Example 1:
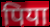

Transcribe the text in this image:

पिया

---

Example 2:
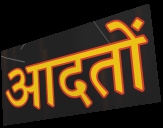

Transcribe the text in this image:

आदतों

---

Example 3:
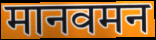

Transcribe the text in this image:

मानवमन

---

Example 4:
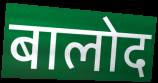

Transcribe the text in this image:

बालोद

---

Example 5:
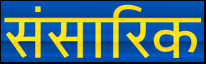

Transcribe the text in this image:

संसारिक